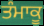
ਤੰਮਾਕੂ